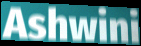
Ashwini